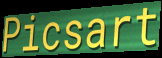
Picsart